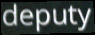
deputy